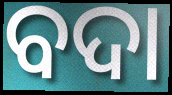
ବଦା